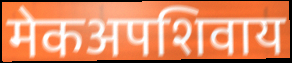
मेकअपशिवाय